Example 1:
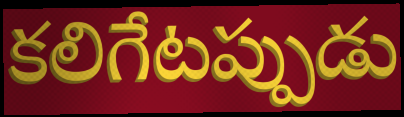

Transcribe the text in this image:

కలిగేటప్పుడు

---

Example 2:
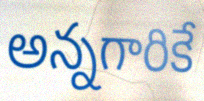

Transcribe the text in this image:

అన్నగారికే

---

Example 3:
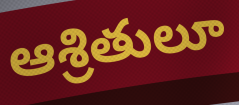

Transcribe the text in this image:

ఆశ్రితులూ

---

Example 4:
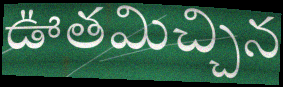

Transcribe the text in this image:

ఊతమిచ్చిన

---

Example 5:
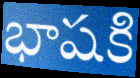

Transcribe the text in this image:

భాషకి